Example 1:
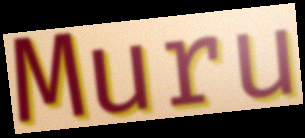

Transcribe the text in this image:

Muru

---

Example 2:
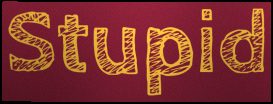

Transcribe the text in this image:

Stupid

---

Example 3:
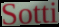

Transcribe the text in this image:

Sotti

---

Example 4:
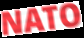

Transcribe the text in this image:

NATO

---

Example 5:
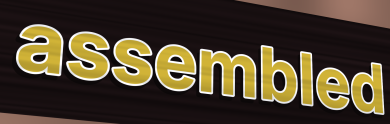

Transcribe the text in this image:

assembled